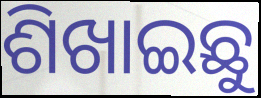
ଶିଖାଇଛୁ